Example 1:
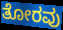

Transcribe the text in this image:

ತೋರವು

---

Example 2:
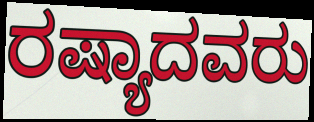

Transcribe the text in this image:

ರಷ್ಯಾದವರು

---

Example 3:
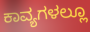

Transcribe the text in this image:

ಕಾವ್ಯಗಳಲ್ಲೂ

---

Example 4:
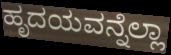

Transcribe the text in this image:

ಹೃದಯವನ್ನೆಲ್ಲಾ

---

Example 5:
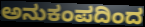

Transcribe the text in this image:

ಅನುಕಂಪದಿಂದ